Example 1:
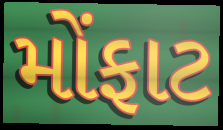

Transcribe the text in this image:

મોંફાટ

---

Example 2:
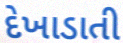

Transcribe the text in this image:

દેખાડાતી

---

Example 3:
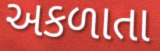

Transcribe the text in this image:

અકળાતા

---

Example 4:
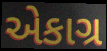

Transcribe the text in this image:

એકાગ્ર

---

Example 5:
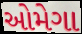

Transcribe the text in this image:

ઓમેગા